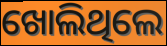
ଖୋଲିଥିଲେ